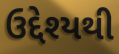
ઉદ્દેશ્યથી